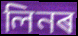
লিনৰ